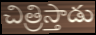
చిత్రిస్తాడు